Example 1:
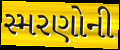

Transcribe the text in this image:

સ્મરણોની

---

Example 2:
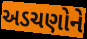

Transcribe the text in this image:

અડચણોને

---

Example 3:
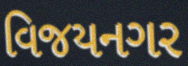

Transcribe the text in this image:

વિજયનગર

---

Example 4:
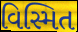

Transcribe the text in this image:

વિસ્મિત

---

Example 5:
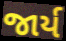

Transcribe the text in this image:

જાર્ય